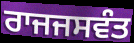
ਰਾਜਜਸਵੰਤ